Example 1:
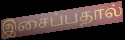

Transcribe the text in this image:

இசைப்பதால்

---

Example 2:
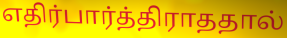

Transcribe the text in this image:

எதிர்பார்த்திராததால்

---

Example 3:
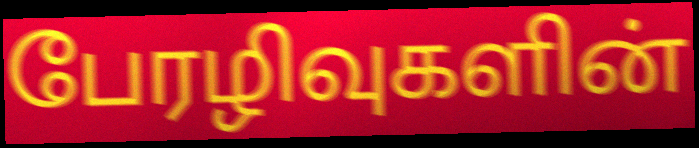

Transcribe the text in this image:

பேரழிவுகளின்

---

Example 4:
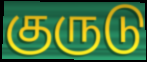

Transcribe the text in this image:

குருடு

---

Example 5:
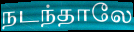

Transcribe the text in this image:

நடந்தாலே